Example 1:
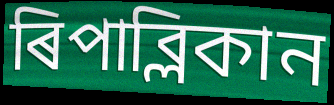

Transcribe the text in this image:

ৰিপাব্লিকান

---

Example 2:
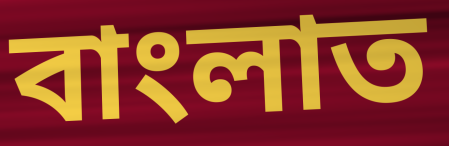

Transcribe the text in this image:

বাংলাত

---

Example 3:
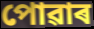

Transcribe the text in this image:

পোৱাৰ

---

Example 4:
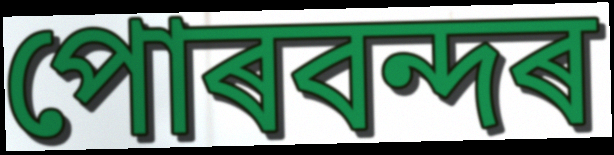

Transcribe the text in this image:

পোৰবন্দৰ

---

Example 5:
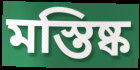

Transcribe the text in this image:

মস্তিষ্ক